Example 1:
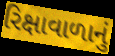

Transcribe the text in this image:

રિક્ષાવાળાનું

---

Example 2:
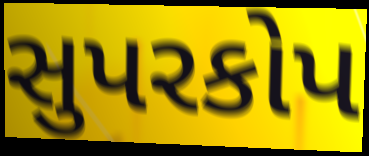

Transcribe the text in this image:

સુપરકોપ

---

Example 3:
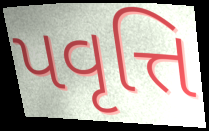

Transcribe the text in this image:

પવૃત્તિ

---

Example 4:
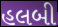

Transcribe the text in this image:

હલબી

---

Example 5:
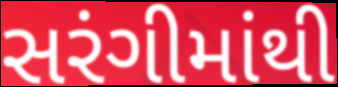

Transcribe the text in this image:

સરંગીમાંથી